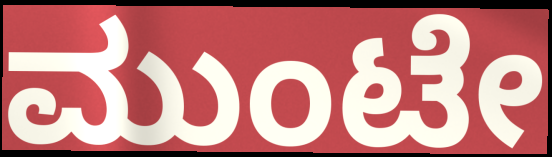
ಮುಂಟೇ